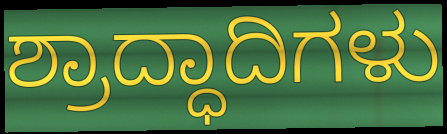
ಶ್ರಾದ್ಧಾದಿಗಳು